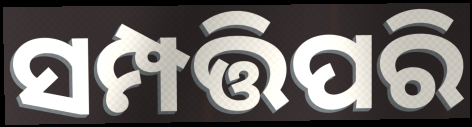
ସମ୍ପତ୍ତିପରି